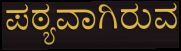
ಪಠ್ಯವಾಗಿರುವ